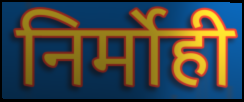
निर्मोही